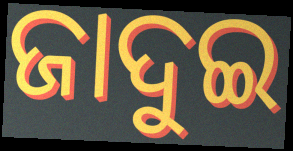
ଜାଦୁଇ